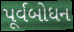
પૂર્વબોધન